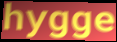
hygge